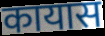
कायास